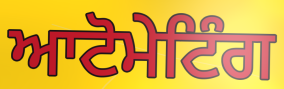
ਆਟੋਮੇਟਿੰਗ